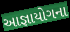
આજ્ઞાયોગના